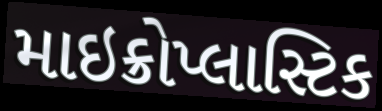
માઇક્રોપ્લાસ્ટિક